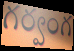
గర్వంగ